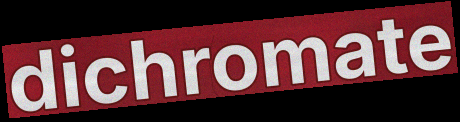
dichromate